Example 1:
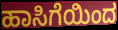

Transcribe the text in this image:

ಹಾಸಿಗೆಯಿಂದ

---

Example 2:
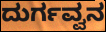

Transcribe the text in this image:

ದುರ್ಗವ್ವನ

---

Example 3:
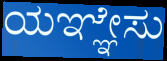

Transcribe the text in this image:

ಯಞ್ಞೇಸು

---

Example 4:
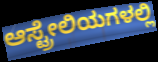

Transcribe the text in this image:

ಆಸ್ಟ್ರೇಲಿಯಗಳಲ್ಲಿ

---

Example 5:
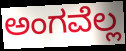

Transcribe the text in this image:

ಅಂಗವೆಲ್ಲ